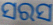
ସରସ